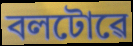
বলটোৱে